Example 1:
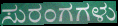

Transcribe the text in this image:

ಸುರಂಗಗಳು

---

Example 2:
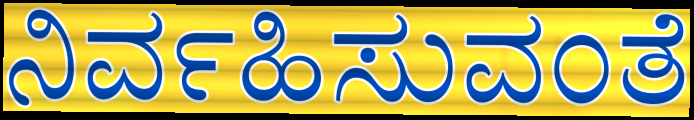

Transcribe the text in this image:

ನಿರ್ವಹಿಸುವಂತೆ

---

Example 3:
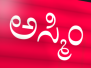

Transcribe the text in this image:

ಅಸ್ಮಿಂ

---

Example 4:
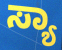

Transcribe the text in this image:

ಸ್ಯಾ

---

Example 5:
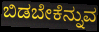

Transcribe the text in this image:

ಬಿಡಬೇಕೆನ್ನುವ